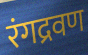
रंगद्रवण